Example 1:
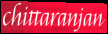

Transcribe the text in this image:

chittaranjan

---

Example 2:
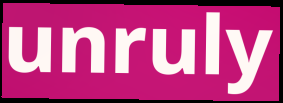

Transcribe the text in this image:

unruly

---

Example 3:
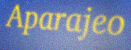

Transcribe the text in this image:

Aparajeo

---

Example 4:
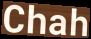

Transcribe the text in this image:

Chah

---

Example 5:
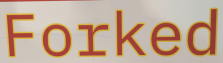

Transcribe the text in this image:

Forked